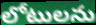
లోటులను